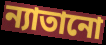
ন্যাতানো